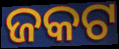
ଜକଟ